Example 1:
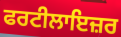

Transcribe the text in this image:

ਫਰਟੀਲਾਇਜ਼ਰ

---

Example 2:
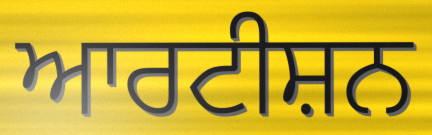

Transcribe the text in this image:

ਆਰਟੀਸ਼ਨ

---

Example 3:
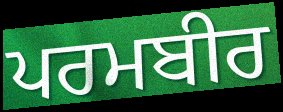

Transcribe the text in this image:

ਪਰਮਬੀਰ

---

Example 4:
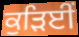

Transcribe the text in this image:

ਕੁੜਿਈਂ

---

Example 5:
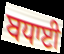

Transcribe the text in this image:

ਬਧਾਈ